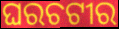
ଘରଚଟୀର